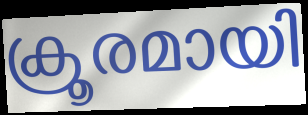
ക്രൂരമായി